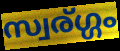
സ്വര്ഗ്ഗം